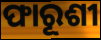
ଫାରୂଶୀ